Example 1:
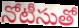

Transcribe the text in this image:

నోటీసుతో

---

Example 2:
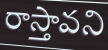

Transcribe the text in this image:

రాస్తావని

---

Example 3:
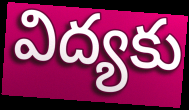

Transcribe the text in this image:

విద్యకు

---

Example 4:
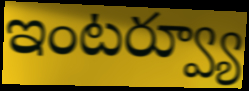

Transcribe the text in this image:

ఇంటర్వ్యూ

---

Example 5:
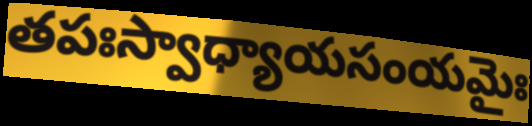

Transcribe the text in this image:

తపఃస్వాధ్యాయసంయమైః